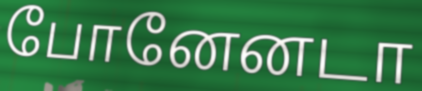
போனேனடா